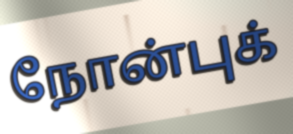
நோன்புக்